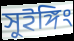
সুইঙ্গিং